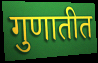
गुणातीत